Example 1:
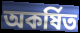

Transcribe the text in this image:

অকর্ষিত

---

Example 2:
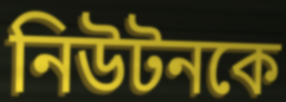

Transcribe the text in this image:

নিউটনকে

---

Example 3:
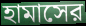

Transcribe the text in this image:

হামাসের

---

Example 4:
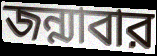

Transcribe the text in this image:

জন্মাবার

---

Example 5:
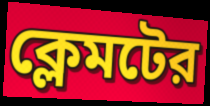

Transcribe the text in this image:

ক্লেমটের